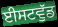
ਈਸਟਵੁੱਡ